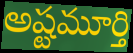
అష్టమూర్తి